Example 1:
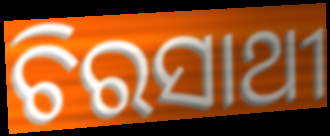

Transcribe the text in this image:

ଚିରସାଥୀ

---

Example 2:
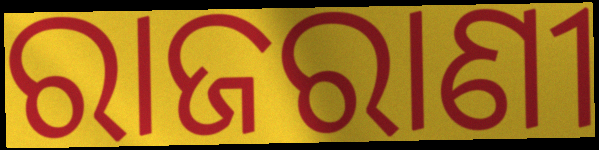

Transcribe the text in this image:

ରାଜରାଣୀ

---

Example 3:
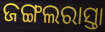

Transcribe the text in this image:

ଜଙ୍ଗଲରାସ୍ତା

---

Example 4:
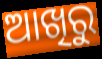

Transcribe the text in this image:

ଆଖିରୁ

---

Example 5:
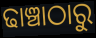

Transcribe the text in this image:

ଢାଞ୍ଚାଠାରୁ